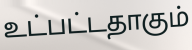
உட்பட்டதாகும்